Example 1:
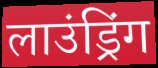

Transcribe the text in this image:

लाउंड्रिंग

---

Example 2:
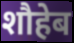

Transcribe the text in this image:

शौहेब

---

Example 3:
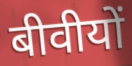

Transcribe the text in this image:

बीवीयों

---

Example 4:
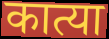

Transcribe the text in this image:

कात्या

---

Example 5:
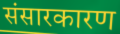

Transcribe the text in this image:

संसारकारण